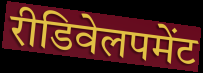
रीडिवेलपमेंट